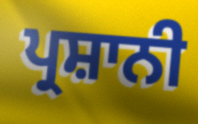
ਪ੍ਰਸ਼ਾਨੀ